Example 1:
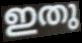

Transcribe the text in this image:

ഇതു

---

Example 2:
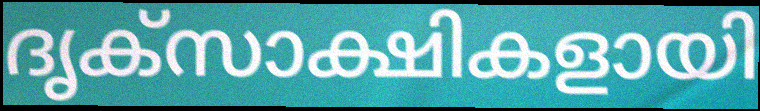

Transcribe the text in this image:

ദൃക്സാക്ഷികളായി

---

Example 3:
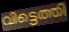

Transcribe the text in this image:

വിട്ടെത്തി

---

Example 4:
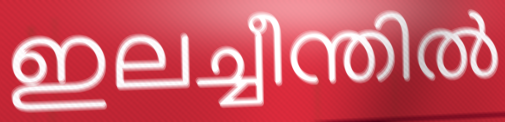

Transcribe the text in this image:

ഇലച്ചീന്തിൽ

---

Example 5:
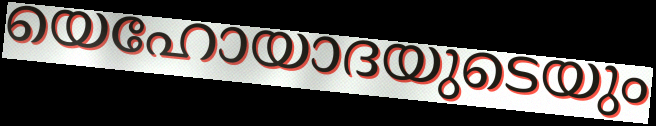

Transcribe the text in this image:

യെഹോയാദയുടെയും